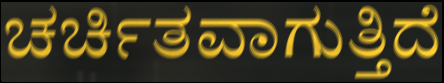
ಚರ್ಚಿತವಾಗುತ್ತಿದೆ